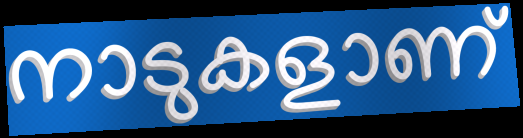
നാടുകളാണ്